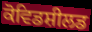
ਕੋਵਿਡਸ਼ੀਲਡ